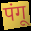
पंगू